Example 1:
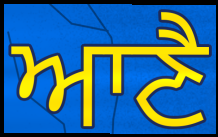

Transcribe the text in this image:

ਆਣੈ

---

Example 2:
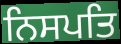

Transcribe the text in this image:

ਨਿਸਪਤਿ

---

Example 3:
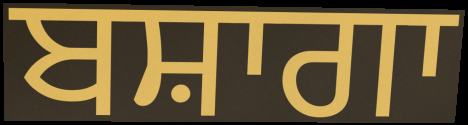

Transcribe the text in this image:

ਬਸ਼ਾਗਾ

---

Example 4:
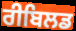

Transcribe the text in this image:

ਰੀਬਿਲਡ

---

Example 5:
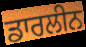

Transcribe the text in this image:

ਡਾਰਲੀਨ